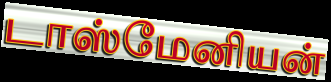
டாஸ்மேனியன்